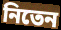
নিতেন